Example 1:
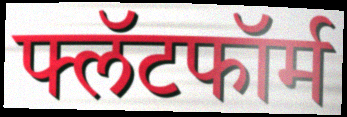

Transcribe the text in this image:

फ्लॅटफॉर्म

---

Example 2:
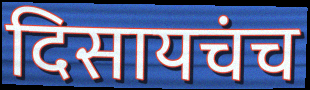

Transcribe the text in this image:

दिसायचंच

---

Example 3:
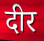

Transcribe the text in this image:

दीर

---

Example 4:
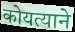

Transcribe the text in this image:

कोयत्याने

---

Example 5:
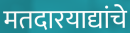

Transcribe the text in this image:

मतदारयाद्यांचे